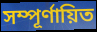
সম্পূর্ণায়িত